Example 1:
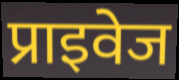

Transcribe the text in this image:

प्राइवेज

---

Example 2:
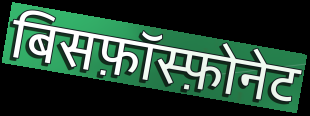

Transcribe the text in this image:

बिसफ़ॉस्फ़ोनेट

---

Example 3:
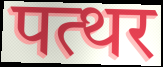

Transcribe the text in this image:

पत्‍थर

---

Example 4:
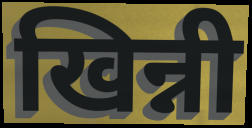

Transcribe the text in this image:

खिन्नी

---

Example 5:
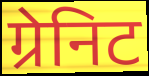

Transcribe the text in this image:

ग्रेनिट